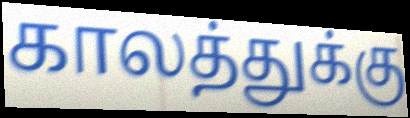
காலத்துக்கு